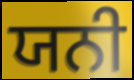
ਯਨੀ